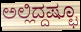
ಅಲ್ಲಿದ್ದಷ್ಟೂ